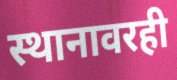
स्थानावरही